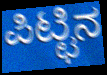
ಪಿಟ್ಟಿನ